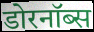
डोरनॉब्स